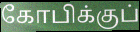
கோபிக்குப்